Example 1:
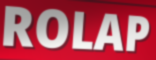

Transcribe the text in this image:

ROLAP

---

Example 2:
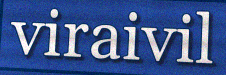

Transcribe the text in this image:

viraivil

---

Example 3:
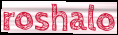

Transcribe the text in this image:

roshalo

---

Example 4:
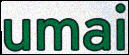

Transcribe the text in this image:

umai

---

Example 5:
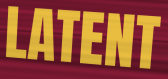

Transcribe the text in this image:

LATENT